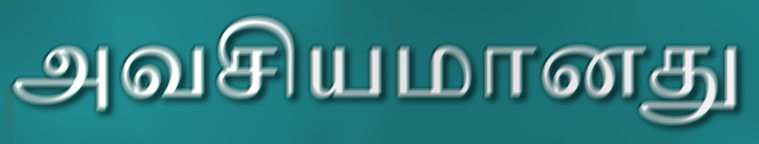
அவசியமானது